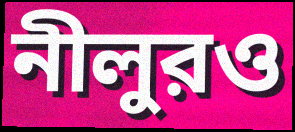
নীলুরও